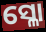
ସ୍ଳୋ